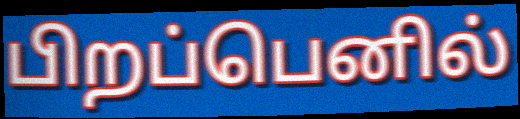
பிறப்பெனில்